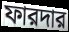
ফারদার